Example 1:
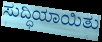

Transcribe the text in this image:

ಸುದ್ಧಿಯಾಯಿತು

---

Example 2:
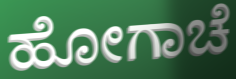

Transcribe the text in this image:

ಹೋಗಾಚೆ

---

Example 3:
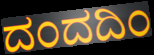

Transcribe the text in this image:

ದಂದದಿಂ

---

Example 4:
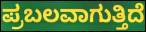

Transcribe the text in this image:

ಪ್ರಬಲವಾಗುತ್ತಿದೆ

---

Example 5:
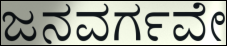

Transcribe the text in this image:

ಜನವರ್ಗವೇ